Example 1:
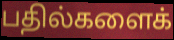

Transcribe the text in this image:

பதில்களைக்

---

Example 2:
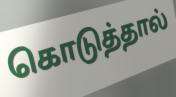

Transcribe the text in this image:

கொடுத்தால்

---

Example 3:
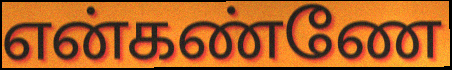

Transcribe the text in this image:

என்கண்ணே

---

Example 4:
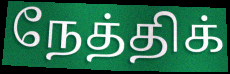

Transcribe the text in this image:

நேத்திக்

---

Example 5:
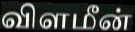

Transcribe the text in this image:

விளமீன்